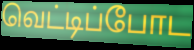
வெட்டிப்போட